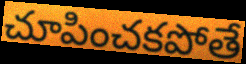
చూపించకపోతే